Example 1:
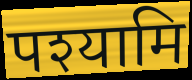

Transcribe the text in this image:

पश्यामि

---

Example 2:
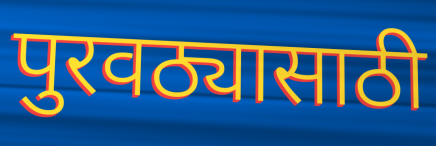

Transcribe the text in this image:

पुरवठ्यासाठी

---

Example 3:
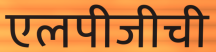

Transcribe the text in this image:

एलपीजीची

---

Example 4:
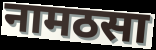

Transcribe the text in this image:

नामठसा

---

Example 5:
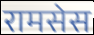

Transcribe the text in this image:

रामसेस